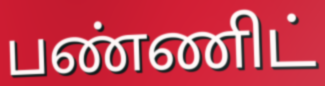
பண்ணிட்